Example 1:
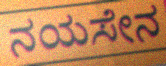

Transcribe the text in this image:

ನಯಸೇನ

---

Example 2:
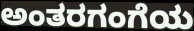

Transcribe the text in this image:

ಅಂತರಗಂಗೆಯ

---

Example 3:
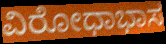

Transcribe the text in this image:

ವಿರೋಧಾಭಾಸ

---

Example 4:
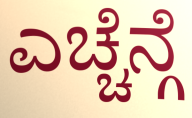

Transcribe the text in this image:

ಎಚ್ಚೆನ್ಗೆ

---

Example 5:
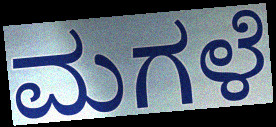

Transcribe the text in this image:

ಮಗಳೆ